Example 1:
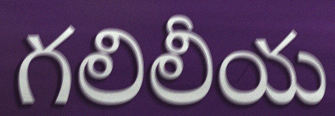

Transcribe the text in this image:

గలిలీయ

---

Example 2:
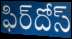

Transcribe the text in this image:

ఫిర్‌దోస్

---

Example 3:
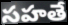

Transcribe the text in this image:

సహతే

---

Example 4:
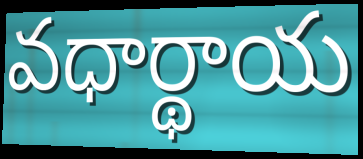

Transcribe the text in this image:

వధార్థాయ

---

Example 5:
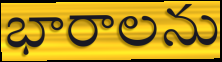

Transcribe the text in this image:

భారాలను